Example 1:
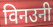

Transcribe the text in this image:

विनउनी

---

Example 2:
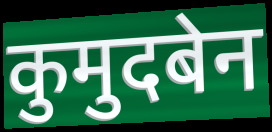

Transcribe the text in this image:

कुमुदबेन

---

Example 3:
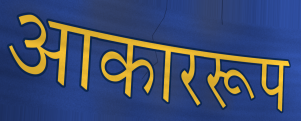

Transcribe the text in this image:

आकाररूप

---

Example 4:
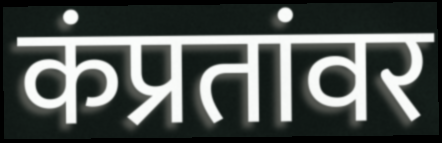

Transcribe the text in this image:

कंप्रतांवर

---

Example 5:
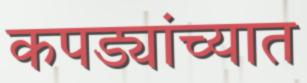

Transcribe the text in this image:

कपड्यांच्यात